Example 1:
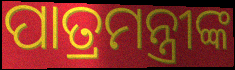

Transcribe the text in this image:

ପାତ୍ରମନ୍ତ୍ରୀଙ୍କ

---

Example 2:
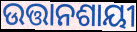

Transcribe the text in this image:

ଉତ୍ତାନଶାୟୀ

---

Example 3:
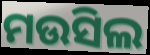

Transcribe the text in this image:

ମଉସିଲ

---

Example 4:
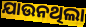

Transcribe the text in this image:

ଯାଉନଥିଲା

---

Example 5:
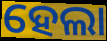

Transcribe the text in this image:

ହେଲା